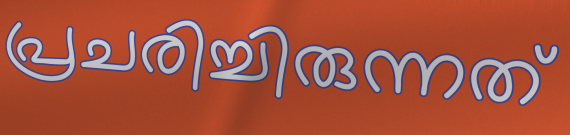
പ്രചരിച്ചിരുന്നത്